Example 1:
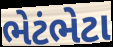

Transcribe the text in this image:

ભેટંભેટા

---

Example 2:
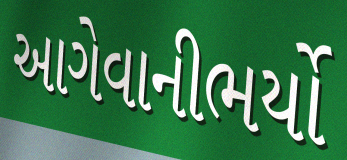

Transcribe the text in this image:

આગેવાનીભર્યો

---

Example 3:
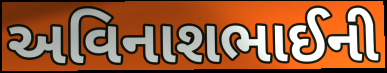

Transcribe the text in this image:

અવિનાશભાઈની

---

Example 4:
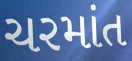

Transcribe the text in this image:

ચરમાંત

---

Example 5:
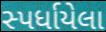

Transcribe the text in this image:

સ્પર્ધાયેલા